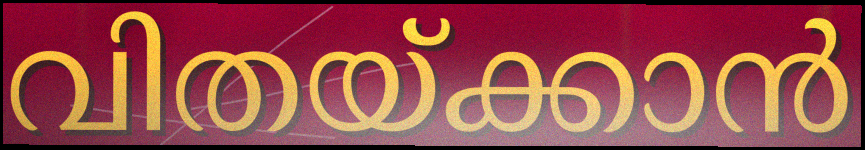
വിതയ്ക്കാൻ